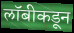
लॉबीकडून